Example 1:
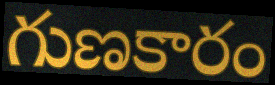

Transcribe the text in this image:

గుణకారం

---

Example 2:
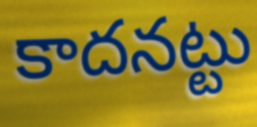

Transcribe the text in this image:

కాదనట్టు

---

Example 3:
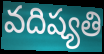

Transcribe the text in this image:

వదిష్యతి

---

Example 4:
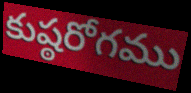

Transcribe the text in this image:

కుష్ఠరోగము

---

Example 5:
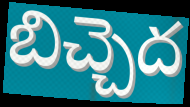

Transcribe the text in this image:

బిచ్చెద